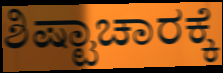
ಶಿಷ್ಟಾಚಾರಕ್ಕೆ